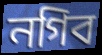
নগিব